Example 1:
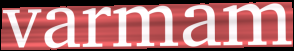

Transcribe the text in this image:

varmam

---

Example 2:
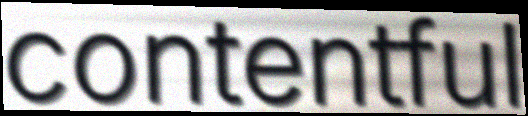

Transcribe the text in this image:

contentful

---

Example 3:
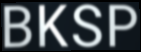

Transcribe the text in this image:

BKSP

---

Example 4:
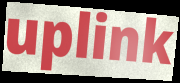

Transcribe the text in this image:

uplink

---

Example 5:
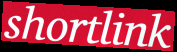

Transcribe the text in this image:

shortlink